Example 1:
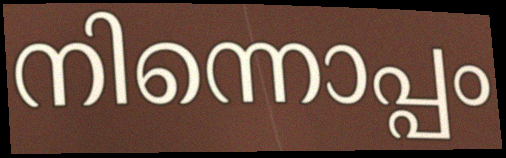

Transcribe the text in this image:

നിന്നൊപ്പം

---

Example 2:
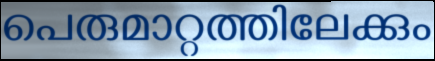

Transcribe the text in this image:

പെരുമാറ്റത്തിലേക്കും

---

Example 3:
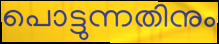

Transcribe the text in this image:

പൊട്ടുന്നതിനും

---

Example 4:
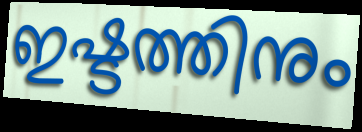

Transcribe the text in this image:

ഇഷ്ടത്തിനും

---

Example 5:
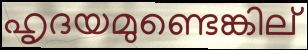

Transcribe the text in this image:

ഹൃദയമുണ്ടെങ്കില്